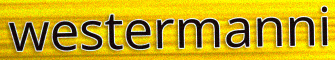
westermanni